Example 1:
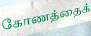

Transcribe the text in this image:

கோணத்தைக்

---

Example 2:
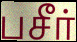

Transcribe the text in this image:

பசீர்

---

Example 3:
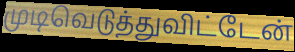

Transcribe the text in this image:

முடிவெடுத்துவிட்டேன்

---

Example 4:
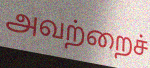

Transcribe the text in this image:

அவற்றைச்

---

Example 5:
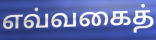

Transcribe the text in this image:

எவ்வகைத்